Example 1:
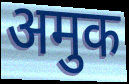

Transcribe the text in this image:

अमुक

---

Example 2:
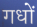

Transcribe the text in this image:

गधों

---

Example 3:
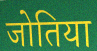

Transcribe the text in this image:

जोतिया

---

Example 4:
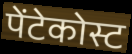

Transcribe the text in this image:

पेंटेकोस्ट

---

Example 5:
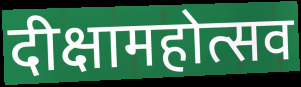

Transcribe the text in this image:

दीक्षामहोत्सव